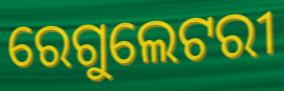
ରେଗୁଲେଟରୀ